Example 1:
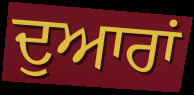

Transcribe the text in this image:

ਦੁਆਰਾਂ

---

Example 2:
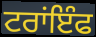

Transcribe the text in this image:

ਟਰਾਂਇੰਫ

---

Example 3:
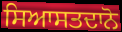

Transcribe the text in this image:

ਸਿਆਸਤਦਾਨੋ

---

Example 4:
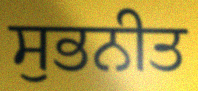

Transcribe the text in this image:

ਸੁਭਨੀਤ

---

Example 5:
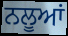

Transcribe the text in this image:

ਨਲੂਆਂ